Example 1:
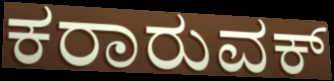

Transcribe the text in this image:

ಕರಾರುವಕ್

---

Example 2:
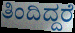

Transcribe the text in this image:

ತಿಂದಿದ್ದರೆ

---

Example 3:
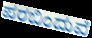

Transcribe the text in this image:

ಪರಬಿಂದುವೆ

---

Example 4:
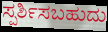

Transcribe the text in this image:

ಸ್ಪರ್ಶಿಸಬಹುದು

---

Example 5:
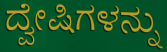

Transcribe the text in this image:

ದ್ವೇಷಿಗಳನ್ನು